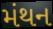
મંથન